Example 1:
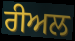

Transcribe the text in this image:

ਰੀਅਲ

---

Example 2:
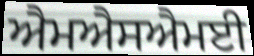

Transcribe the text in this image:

ਐਮਐਸਐਮਈ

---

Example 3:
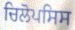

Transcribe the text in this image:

ਚਿਲੋਪਸਿਸ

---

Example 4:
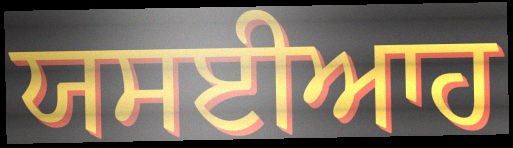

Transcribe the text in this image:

ਯਸਈਆਹ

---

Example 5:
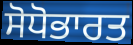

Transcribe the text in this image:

ਸੋਧੋਭਾਰਤ